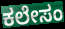
ಕಲೇಸಂ